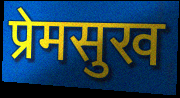
प्रेमसुख